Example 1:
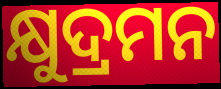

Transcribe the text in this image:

କ୍ଷୁଦ୍ରମନ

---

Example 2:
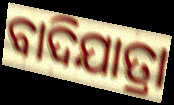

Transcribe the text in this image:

ବାଦିଯାତ୍ରା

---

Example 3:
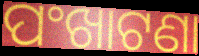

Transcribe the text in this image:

ପଂଖାଟଣା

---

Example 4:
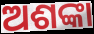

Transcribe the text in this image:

ଅଶଙ୍କା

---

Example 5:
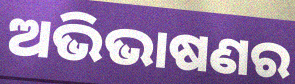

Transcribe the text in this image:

ଅଭିଭାଷଣର